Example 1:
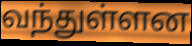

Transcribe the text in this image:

வந்துள்ளன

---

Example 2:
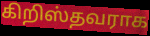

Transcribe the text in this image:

கிறிஸ்தவராக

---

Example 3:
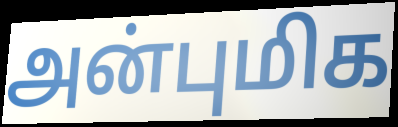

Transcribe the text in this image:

அன்புமிக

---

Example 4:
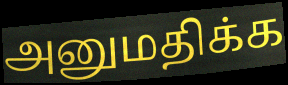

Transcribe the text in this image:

அனுமதிக்க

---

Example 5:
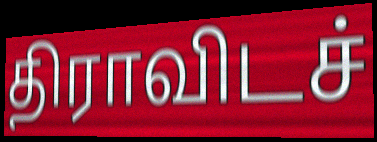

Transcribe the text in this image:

திராவிடச்